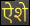
ऐशे